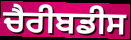
ਚੈਰੀਬਡੀਸ